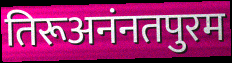
तिरूअनंनतपुरम